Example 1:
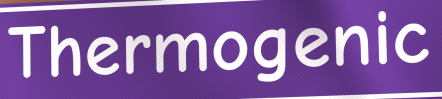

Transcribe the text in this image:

Thermogenic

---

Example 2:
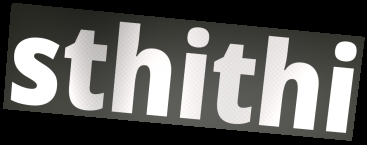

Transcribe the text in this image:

sthithi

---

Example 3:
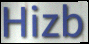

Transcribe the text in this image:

Hizb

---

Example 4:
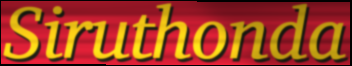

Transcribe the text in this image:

Siruthonda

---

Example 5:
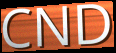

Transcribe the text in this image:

CND